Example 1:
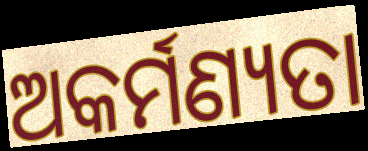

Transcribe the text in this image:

ଅକର୍ମଣ୍ୟତା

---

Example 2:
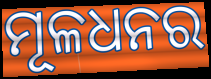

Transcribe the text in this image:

ମୂଳଧନର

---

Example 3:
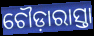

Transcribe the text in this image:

ଚୌଡ଼ାରାସ୍ତା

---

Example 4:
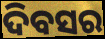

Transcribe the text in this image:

ଦିବସର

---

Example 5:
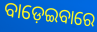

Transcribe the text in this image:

ବାଡ଼େଇବାରେ